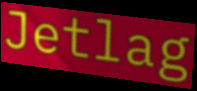
Jetlag